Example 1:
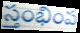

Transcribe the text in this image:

స్తంభింప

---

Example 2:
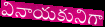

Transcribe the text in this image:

వినాయకునిగా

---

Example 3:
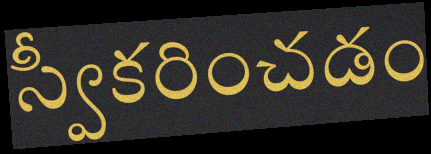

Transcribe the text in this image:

స్వీకరించడం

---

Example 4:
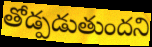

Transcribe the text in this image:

తోడ్పడుతుందని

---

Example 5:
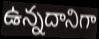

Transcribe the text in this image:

ఉన్నదానిగా